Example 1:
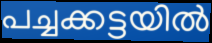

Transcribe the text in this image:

പച്ചക്കട്ടയിൽ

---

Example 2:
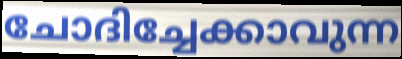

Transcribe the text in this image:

ചോദിച്ചേക്കാവുന്ന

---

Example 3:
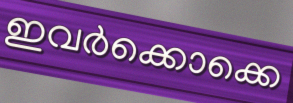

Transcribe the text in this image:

ഇവർക്കൊക്കെ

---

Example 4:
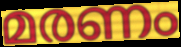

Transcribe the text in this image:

മരണം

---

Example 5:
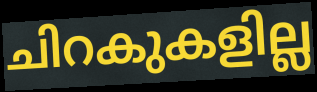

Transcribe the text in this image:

ചിറകുകളില്ല